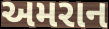
અમરાન